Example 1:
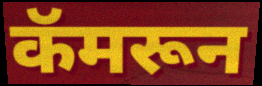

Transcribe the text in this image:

कॅमरून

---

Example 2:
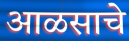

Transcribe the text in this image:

आळसाचे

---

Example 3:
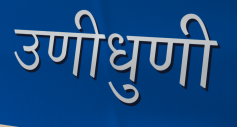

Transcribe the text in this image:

उणीधुणी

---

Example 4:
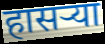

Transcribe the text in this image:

हासऱ्या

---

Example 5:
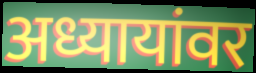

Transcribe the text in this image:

अध्यायांवर